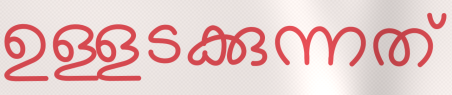
ഉള്ളടക്കുന്നത്